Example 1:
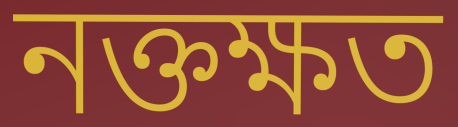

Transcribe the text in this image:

নক্তক্ষত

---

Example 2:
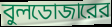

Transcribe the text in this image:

বুলডোজারের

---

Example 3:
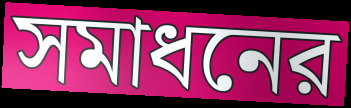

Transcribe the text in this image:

সমাধনের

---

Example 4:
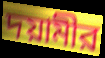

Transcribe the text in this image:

দয়ামীর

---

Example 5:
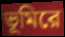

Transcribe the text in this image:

ভূমিরে